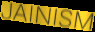
JAINISM